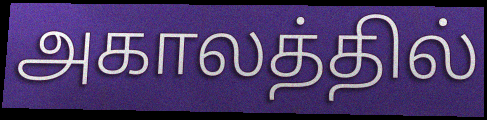
அகாலத்தில்